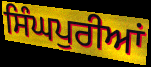
ਸਿੰਘਪੁਰੀਆਂ